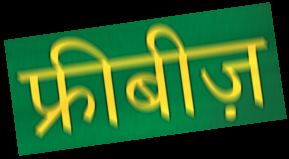
फ्रीबीज़